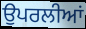
ਉਪਰਲੀਆਂ